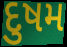
દુષમ